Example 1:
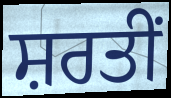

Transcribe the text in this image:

ਸ਼ਰਤੀਂ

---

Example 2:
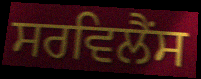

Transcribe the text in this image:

ਸਰਵਿਲੈਂਸ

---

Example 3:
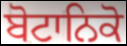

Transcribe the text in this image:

ਬੋਟਾਨਿਕੋ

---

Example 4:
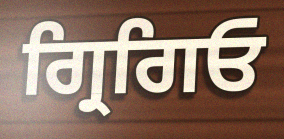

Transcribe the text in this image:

ਗ੍ਰਿਗਿਓ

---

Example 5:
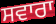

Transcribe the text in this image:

ਸਵਾਰਾ